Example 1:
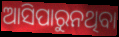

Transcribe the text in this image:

ଆସିପାରୁନଥିବା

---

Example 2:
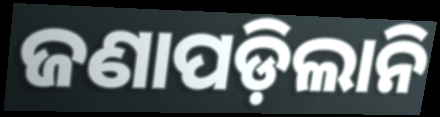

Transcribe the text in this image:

ଜଣାପଡ଼ିଲାନି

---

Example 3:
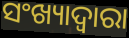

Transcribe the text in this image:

ସଂଖ୍ୟାଦ୍ଵାରା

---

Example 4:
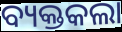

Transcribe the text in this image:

ବ୍ୟକ୍ତକଲା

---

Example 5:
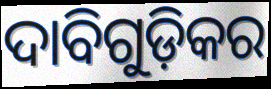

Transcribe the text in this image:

ଦାବିଗୁଡ଼ିକର